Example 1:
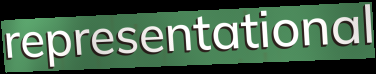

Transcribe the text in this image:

representational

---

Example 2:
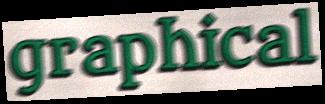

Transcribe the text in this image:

graphical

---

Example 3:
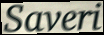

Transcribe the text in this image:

Saveri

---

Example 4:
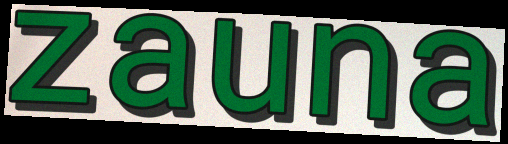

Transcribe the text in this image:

zauna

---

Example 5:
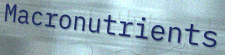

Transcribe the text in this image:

Macronutrients